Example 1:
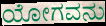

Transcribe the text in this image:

ಯೋಗವನು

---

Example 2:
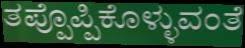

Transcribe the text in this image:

ತಪ್ಪೊಪ್ಪಿಕೊಳ್ಳುವಂತೆ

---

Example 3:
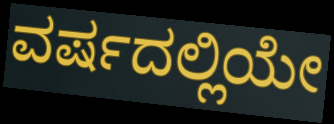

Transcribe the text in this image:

ವರ್ಷದಲ್ಲಿಯೇ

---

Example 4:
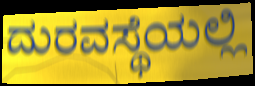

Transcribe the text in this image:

ದುರವಸ್ಥೆಯಲ್ಲಿ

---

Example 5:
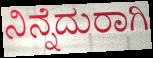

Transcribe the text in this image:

ನಿನ್ನೆದುರಾಗಿ